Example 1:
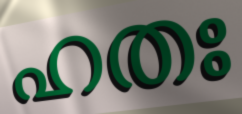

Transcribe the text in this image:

ഹതഃ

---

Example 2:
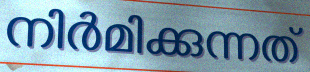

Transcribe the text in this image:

നിർമിക്കുന്നത്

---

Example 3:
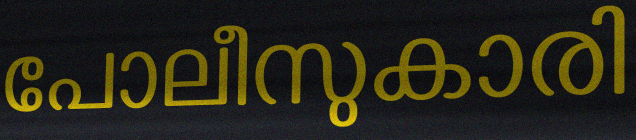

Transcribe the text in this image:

പോലീസുകാരി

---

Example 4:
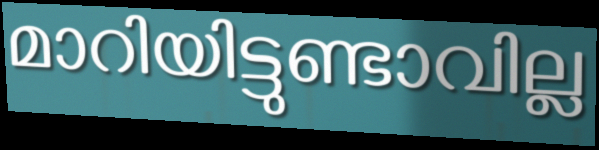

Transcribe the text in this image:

മാറിയിട്ടുണ്ടാവില്ല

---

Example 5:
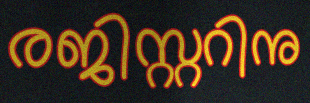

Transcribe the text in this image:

രജിസ്റ്ററിനു